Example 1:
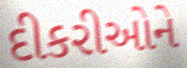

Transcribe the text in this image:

દીકરીઓને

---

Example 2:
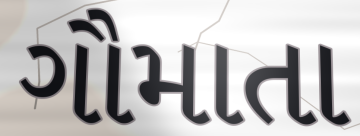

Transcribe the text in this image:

ગૌમાતા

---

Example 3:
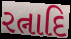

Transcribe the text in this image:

રત્નાદિ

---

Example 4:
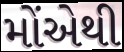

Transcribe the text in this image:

મોંએથી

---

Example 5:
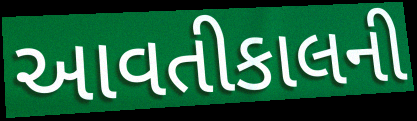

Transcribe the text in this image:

આવતીકાલની